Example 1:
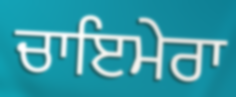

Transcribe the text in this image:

ਚਾਇਮੇਰਾ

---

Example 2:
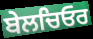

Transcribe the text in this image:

ਬੇਲਚਿਓਰ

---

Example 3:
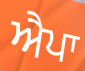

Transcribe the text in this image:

ਐਪਾ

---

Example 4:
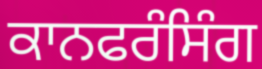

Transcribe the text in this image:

ਕਾਨਫਰੰਸਿੰਗ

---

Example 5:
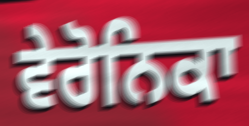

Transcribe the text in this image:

ਵੇਰੋਨਿਕਾ